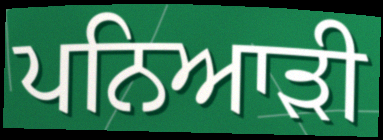
ਪਨਿਆੜੀ